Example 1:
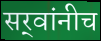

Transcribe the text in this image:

सर्वांनीच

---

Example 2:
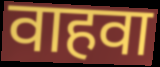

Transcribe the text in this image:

वाहवा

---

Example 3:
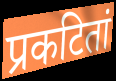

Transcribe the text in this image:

प्रकटितां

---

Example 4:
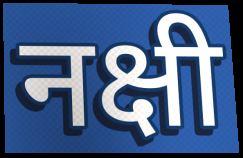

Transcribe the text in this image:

नक्षी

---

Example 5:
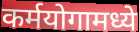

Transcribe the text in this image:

कर्मयोगामध्ये